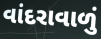
વાંદરાવાળું